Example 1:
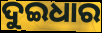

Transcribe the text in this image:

ଦୁଇଧାର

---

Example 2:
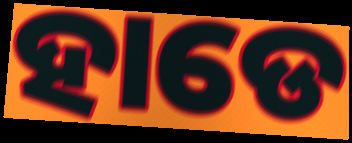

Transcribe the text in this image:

ହାଡେ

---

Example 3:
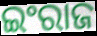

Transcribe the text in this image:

ଇଂରାଜ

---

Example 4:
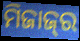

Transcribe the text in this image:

ମିଜାଜ୍‌ର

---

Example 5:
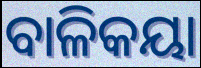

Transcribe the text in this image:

ବାଳିକୟା